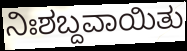
ನಿಃಶಬ್ದವಾಯಿತು